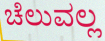
ಚೆಲುವಲ್ಲ